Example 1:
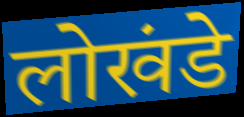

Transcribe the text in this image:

लोखंडे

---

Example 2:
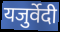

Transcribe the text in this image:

यजुर्वेदी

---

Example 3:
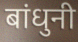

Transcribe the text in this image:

बांधुनी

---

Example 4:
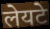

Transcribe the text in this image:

लेयटे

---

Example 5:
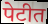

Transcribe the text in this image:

पेटीत